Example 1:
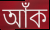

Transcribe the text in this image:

আঁক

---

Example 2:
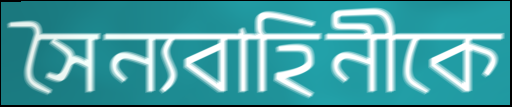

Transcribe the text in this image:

সৈন্যবাহিনীকে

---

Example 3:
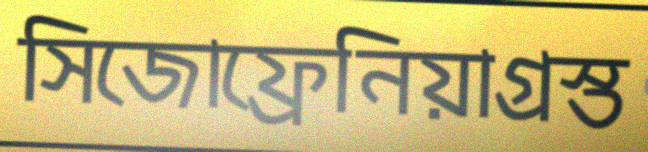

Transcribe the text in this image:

সিজোফ্রেনিয়াগ্রস্ত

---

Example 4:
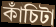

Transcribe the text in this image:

কাঁচিটা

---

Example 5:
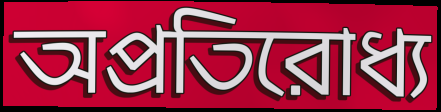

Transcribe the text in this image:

অপ্রতিরোধ্য